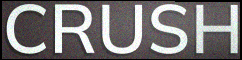
CRUSH